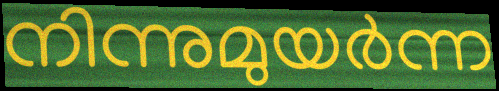
നിന്നുമുയർന്ന